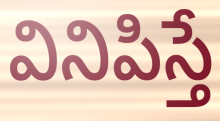
వినిపిస్తే